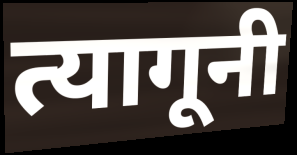
त्यागूनी